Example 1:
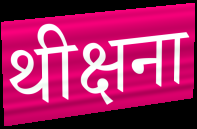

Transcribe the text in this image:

थीक्षना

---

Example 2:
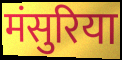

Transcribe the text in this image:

मंसुरिया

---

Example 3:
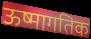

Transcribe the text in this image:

ऊष्मागतिक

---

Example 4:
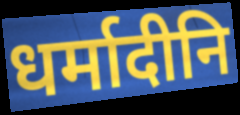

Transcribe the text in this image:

धर्मादीनि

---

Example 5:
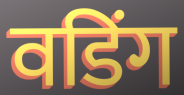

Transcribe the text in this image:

वडिंग